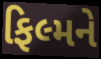
ફિલ્મને